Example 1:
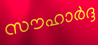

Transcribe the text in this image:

സൗഹാർദ്ദ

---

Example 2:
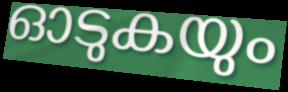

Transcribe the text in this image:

ഓടുകയും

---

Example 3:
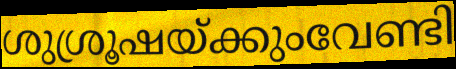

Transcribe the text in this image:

ശുശ്രൂഷയ്ക്കുംവേണ്ടി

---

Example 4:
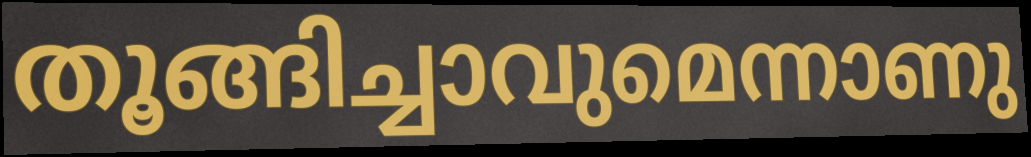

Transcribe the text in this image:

തൂങ്ങിച്ചാവുമെന്നാണു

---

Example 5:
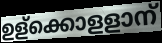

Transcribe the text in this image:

ഉള്ക്കൊളളാന്